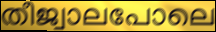
തീജ്വാലപോലെ